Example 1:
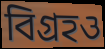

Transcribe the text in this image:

বিগ্রহও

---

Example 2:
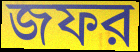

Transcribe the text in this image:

জফর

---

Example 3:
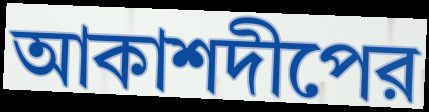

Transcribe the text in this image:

আকাশদীপের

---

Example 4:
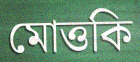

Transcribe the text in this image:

মোত্তকি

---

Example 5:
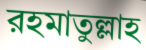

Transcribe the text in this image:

রহমাতুল্লাহ